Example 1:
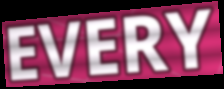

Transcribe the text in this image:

EVERY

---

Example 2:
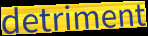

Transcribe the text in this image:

detriment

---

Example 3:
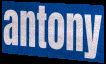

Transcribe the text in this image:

antony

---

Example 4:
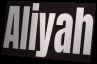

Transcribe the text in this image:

Aliyah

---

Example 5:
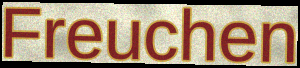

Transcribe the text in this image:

Freuchen